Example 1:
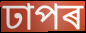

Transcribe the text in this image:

ঢাপৰ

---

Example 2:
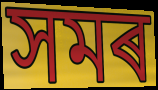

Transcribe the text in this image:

সমৰ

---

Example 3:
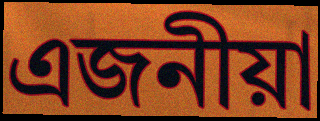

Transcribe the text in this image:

এজনীয়া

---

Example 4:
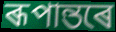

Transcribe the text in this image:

ৰূপান্তৰে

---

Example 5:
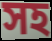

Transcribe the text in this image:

সহ